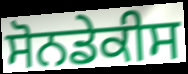
ਸੋਨਡੇਕੀਸ